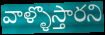
వాళ్ళొస్తారని